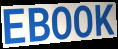
EBOOK